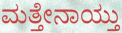
ಮತ್ತೇನಾಯ್ತು